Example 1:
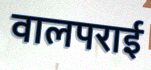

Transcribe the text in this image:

वालपराई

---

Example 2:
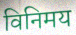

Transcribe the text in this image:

विनिमय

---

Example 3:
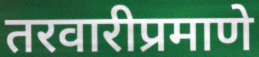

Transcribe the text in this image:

तरवारीप्रमाणे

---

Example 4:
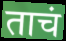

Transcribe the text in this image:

ताचं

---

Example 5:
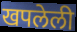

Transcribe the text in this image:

खपलेली